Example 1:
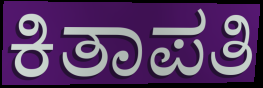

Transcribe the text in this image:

ಕಿತಾಪತಿ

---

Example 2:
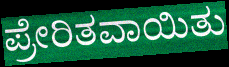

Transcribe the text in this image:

ಪ್ರೇರಿತವಾಯಿತು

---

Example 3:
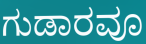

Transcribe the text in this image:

ಗುಡಾರವೂ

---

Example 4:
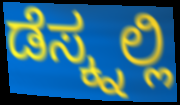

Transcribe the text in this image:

ಡೆಸ್ಕ್ನಲ್ಲಿ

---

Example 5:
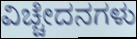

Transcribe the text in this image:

ವಿಚ್ಚೇದನಗಳು